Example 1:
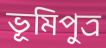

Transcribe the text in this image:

ভূমিপুত্ৰ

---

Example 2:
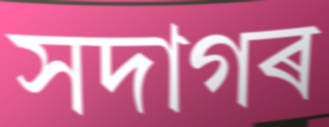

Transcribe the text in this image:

সদাগৰ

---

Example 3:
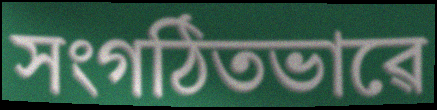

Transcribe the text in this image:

সংগঠিতভাৱে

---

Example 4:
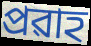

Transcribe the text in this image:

প্ৰৱাহ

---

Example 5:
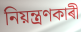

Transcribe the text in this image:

নিয়ন্ত্ৰণকাৰী